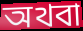
অথবা